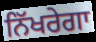
ਨਿੱਖਰੇਗਾ